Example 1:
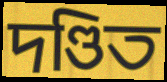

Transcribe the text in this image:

দণ্ডিত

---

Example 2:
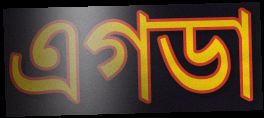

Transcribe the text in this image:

এগডা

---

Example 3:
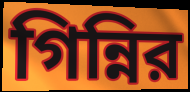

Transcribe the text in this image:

গিন্নির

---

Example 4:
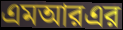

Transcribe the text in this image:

এমআরএর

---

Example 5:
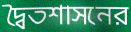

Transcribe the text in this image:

দ্বৈতশাসনের